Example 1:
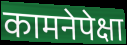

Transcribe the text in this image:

कामनेपेक्षा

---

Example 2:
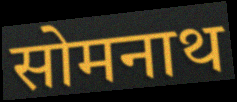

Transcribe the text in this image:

सोमनाथ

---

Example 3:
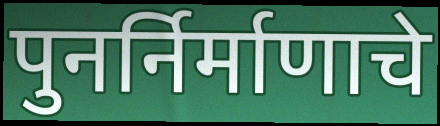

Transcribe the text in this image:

पुनर्निर्माणाचे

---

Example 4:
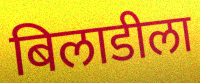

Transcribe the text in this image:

बिलाडीला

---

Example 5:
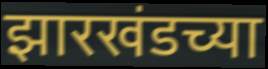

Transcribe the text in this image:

झारखंडच्या